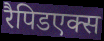
रैपिडएक्स